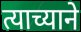
त्याच्याने